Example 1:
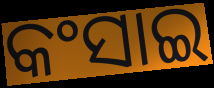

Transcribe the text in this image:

କଂସାଇ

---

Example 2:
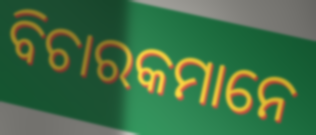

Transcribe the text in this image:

ବିଚାରକମାନେ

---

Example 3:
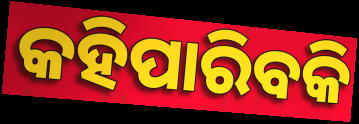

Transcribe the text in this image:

କହିପାରିବକି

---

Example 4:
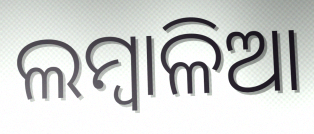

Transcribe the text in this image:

ଲମ୍ବାଳିଆ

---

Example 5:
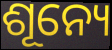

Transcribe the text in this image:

ଶୂନ୍ୟେ